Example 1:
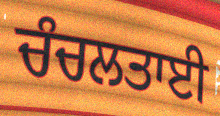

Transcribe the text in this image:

ਚੰਚਲਤਾਈ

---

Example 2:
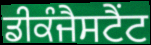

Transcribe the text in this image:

ਡੀਕੰਜੈਸਟੈਂਟ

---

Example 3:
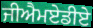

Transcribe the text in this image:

ਜੀਐਮਏਡੀਏ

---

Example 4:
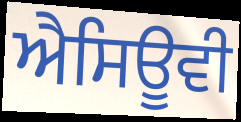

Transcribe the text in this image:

ਐਸਿਊਵੀ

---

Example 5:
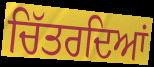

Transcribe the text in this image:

ਚਿੱਤਰਦਿਆਂ